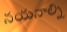
నయనాల్ని